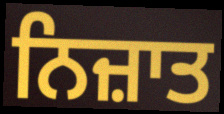
ਨਿਜ਼ਾਤ